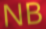
NB